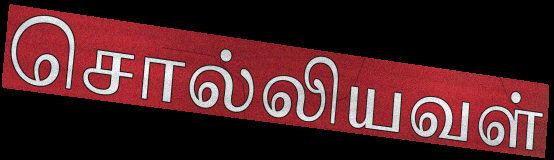
சொல்லியவள்